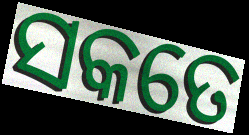
ସକତେ